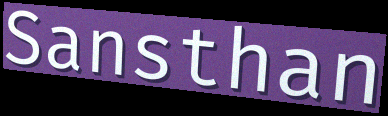
Sansthan